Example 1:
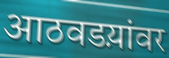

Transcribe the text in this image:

आठवडय़ांवर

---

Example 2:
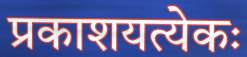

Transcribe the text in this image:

प्रकाशयत्येकः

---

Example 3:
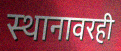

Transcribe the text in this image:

स्थानावरही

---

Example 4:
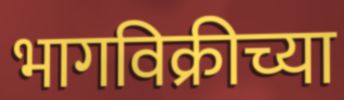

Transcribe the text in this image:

भागविक्रीच्या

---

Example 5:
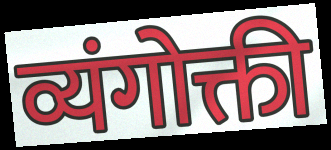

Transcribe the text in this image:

व्यंगोक्ती